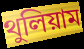
থুলিয়াম